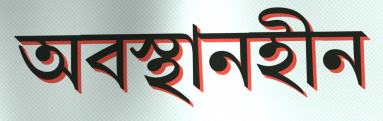
অবস্থানহীন